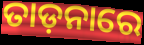
ତାଡ଼ନାରେ